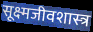
सूक्ष्मजीवशास्त्र